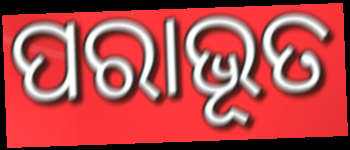
ପରାଭୂତ